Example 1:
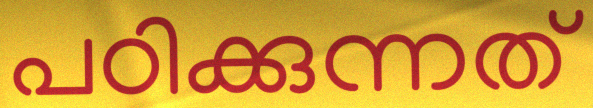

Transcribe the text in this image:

പഠിക്കുന്നത്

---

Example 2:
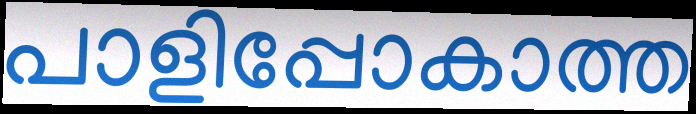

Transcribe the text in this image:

പാളിപ്പോകാത്ത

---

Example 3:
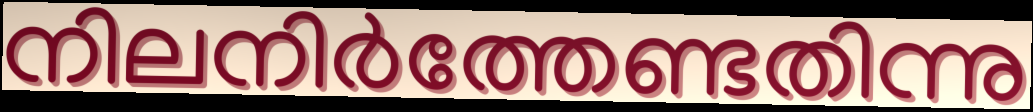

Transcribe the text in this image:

നിലനിർത്തേണ്ടതിന്നു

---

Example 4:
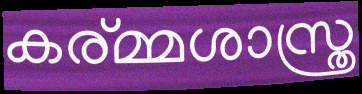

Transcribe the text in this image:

കര്മ്മശാസ്ത്ര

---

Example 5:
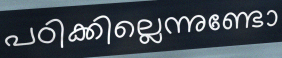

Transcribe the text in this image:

പഠിക്കില്ലെന്നുണ്ടോ